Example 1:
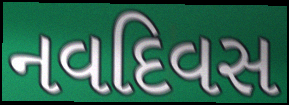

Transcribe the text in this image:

નવદિવસ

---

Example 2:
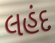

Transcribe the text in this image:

લહંદ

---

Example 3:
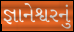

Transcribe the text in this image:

જ્ઞાનેશ્વરનું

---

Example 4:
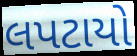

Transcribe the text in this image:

લપટાયો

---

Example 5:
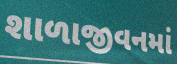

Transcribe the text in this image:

શાળાજીવનમાં